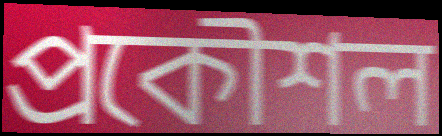
প্রকৌশল